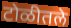
टोळीतले